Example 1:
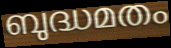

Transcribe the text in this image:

ബുദ്ധമതം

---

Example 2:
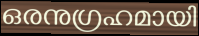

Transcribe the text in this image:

ഒരനുഗ്രഹമായി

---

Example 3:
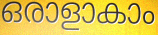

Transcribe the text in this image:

ഒരാളാകാം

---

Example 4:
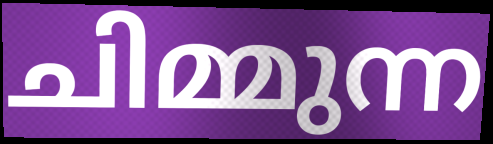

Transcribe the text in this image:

ചിമ്മുന്ന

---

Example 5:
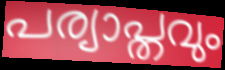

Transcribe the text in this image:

പര്യാപ്തവും